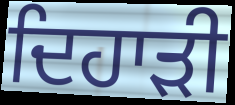
ਦਿਹਾੜੀ